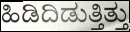
ಹಿಡಿದಿಡುತ್ತಿತ್ತು